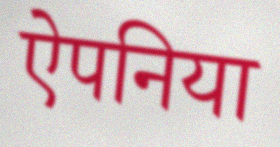
ऐपनिया